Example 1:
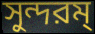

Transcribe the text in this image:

সুন্দরম্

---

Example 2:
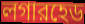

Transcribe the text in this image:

লগারহেড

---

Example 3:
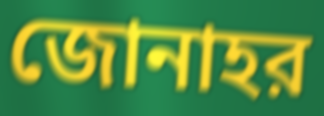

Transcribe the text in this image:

জোনাহর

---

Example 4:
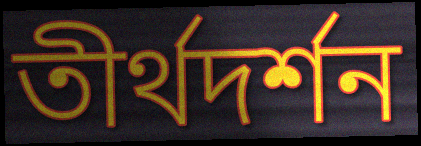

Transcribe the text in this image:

তীর্থদর্শন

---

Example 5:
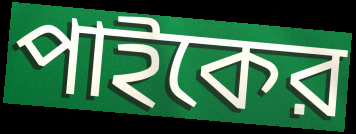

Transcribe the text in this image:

পাইকের